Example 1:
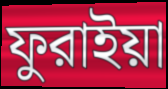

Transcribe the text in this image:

ফুরাইয়া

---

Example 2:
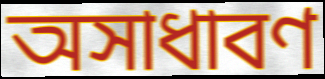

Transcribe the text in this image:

অসাধাবণ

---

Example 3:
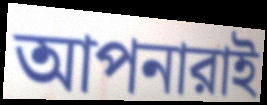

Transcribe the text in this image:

আপনারাই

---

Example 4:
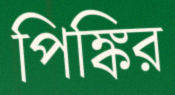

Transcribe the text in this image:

পিঙ্কির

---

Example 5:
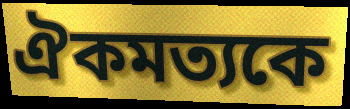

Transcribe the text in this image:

ঐকমত্যকে